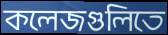
কলেজগুলিতে